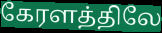
கேரளத்திலே